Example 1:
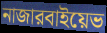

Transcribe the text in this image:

নাজারবাইয়েভ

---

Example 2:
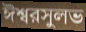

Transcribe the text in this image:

ঈশ্বরসুলভ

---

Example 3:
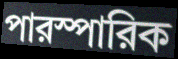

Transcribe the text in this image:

পারস্পারিক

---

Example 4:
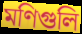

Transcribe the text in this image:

মণিগুলি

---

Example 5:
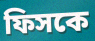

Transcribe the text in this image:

ফিসকে